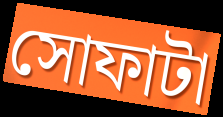
সোফাটা